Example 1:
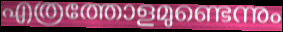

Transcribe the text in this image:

എത്രത്തോളമുണ്ടെന്നും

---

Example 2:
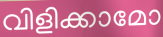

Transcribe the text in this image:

വിളിക്കാമോ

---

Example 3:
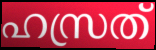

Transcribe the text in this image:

ഹസ്രത്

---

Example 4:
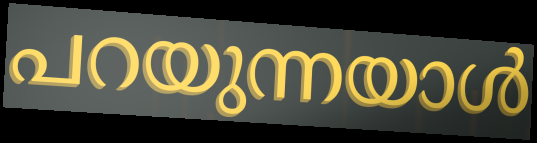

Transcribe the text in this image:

പറയുന്നയാൾ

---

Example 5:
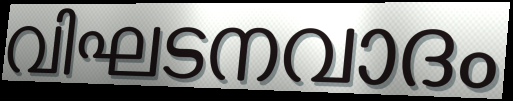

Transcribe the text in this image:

വിഘടനവാദം